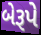
બેરૂપે